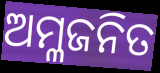
ଅମ୍ଳଜନିତ